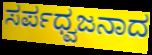
ಸರ್ಪಧ್ವಜನಾದ